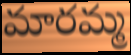
మారమ్మ